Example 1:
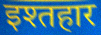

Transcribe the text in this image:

इश्तहार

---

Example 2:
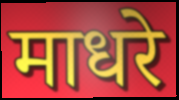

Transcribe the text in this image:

माधरे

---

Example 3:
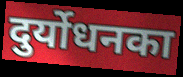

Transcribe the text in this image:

दुर्योधनका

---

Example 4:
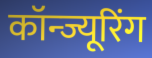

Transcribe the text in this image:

कॉन्ज्यूरिंग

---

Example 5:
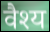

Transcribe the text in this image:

वैश्य